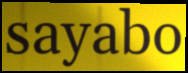
sayabo